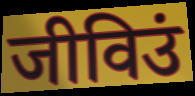
जीविउं